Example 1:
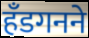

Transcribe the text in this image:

हँडगनने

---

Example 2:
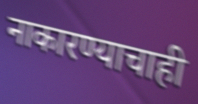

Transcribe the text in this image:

नाकारण्याचाही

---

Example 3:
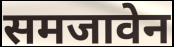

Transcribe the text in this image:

समजावेन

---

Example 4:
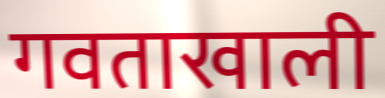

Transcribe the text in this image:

गवताखाली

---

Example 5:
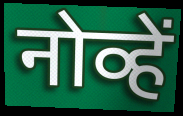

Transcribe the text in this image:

नोव्हें